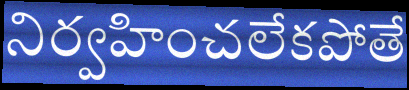
నిర్వహించలేకపోతే